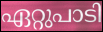
ഏറ്റുപാടി